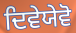
ਦਿਵੇਯੇਵੋ